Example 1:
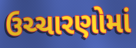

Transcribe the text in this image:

ઉચ્ચારણોમાં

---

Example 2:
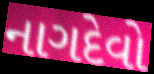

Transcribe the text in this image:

નાગદેવો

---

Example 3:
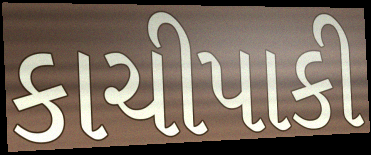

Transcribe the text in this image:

કાચીપાકી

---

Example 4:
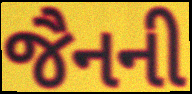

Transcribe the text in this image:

જૈનની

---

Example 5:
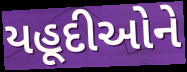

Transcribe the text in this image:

યહૂદીઓને